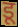
डू